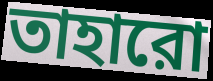
তাহারো